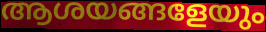
ആശയങ്ങളേയും